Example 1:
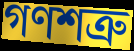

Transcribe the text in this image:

গণশত্রু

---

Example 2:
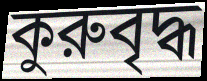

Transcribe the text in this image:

কুরুবৃদ্ধ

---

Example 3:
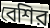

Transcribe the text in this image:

বেশির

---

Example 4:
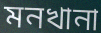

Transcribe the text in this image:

মনখানা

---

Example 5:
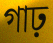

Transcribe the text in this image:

গাঢ়